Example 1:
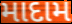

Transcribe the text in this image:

માદામ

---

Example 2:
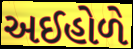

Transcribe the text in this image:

અઈહોળે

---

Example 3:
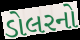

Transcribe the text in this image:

ડોલરનો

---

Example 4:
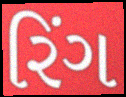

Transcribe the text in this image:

રિંગ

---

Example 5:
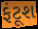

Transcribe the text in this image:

ફંટૂશ